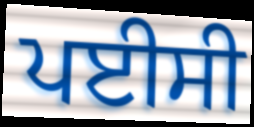
ਪਈਸੀ